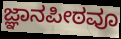
ಜ್ಞಾನಪೀಠವೂ